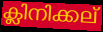
ക്ലിനിക്കല്